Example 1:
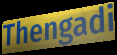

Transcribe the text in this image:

Thengadi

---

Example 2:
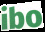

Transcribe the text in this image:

ibo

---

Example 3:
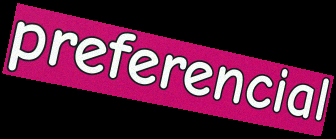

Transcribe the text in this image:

preferencial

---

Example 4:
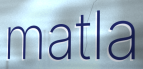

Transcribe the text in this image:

matla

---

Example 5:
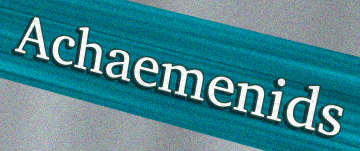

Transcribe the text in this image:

Achaemenids